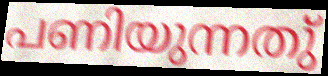
പണിയുന്നതു്